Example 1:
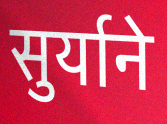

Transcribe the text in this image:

सुर्याने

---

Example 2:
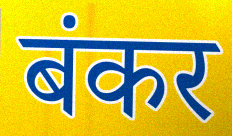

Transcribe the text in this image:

बंकर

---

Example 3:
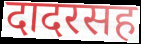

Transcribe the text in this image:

दादरसह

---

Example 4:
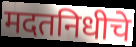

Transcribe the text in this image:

मदतनिधीचे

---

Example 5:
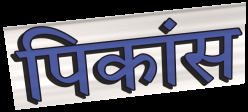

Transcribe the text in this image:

पिकांस